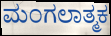
ಮಂಗಲಾತ್ಮಕ